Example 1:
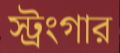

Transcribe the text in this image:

স্ট্রংগার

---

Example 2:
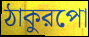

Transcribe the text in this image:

ঠাকুরপো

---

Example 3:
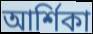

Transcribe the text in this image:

আর্শিকা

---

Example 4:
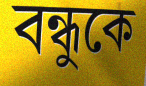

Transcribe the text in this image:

বন্ধুকে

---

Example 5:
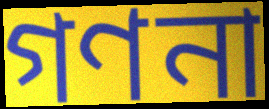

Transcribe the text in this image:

গণনা